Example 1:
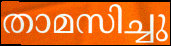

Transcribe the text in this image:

താമസിച്ചു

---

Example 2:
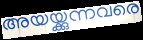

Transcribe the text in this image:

അയയ്ക്കുന്നവരെ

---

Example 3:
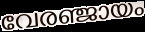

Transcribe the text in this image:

വേരഞ്ജായം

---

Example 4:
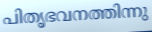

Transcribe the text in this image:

പിതൃഭവനത്തിന്നു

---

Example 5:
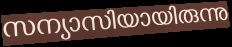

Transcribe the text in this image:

സന്യാസിയായിരുന്നു